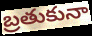
బ్రతుకునా